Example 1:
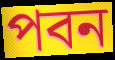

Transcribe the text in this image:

পবন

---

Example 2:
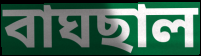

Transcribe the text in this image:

বাঘছাল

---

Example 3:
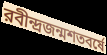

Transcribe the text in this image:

রবীন্দ্রজন্মশতবর্ষে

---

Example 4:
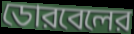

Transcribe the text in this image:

ডোরবেলের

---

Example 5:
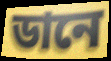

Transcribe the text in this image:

ডানে